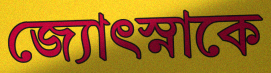
জ্যোৎস্নাকে